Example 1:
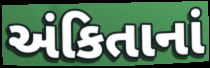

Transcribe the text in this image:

અંકિતાનાં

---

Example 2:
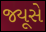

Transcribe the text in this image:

જ્યૂસે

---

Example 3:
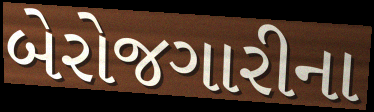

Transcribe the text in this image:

બેરોજગારીના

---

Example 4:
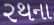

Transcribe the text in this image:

રથના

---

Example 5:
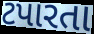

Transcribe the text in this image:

ટપારતા